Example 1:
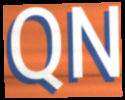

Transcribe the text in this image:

QN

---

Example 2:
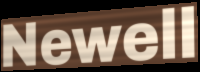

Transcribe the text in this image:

Newell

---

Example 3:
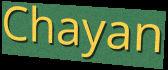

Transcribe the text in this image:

Chayan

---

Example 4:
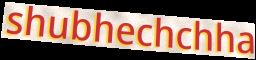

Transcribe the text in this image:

shubhechchha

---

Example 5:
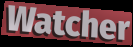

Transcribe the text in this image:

Watcher